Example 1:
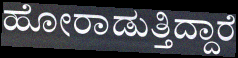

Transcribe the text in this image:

ಹೋರಾಡುತ್ತಿದ್ದಾರೆ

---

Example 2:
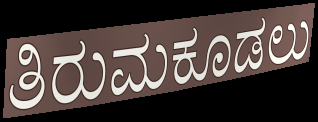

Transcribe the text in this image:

ತಿರುಮಕೂಡಲು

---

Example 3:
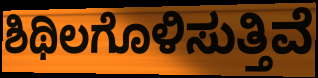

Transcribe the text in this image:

ಶಿಥಿಲಗೊಳಿಸುತ್ತಿವೆ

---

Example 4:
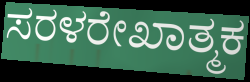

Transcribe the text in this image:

ಸರಳರೇಖಾತ್ಮಕ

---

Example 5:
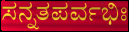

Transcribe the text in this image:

ಸನ್ನತಪರ್ವಭಿಃ